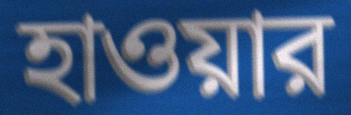
হাওয়ার